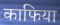
काफिया